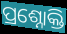
ପ୍ରଶ୍ନୋକ୍ତି